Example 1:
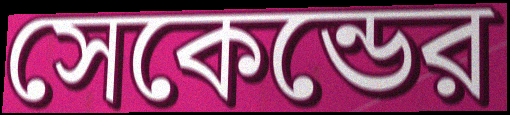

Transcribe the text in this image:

সেকেন্ডের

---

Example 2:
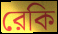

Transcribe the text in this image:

রেকি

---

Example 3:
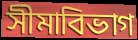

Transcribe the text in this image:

সীমাবিভাগ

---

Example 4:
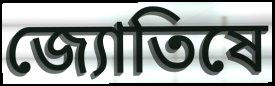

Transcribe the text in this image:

জ্যোতিষে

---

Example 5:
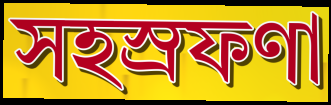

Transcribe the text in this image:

সহস্রফণা